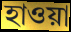
হাওয়া